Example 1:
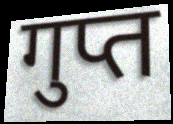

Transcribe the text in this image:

गुप्त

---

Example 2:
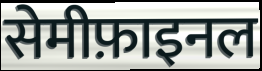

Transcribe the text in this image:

सेमीफ़ाइनल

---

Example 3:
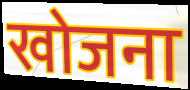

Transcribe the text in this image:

खोजना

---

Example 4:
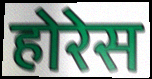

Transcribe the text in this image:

होरेस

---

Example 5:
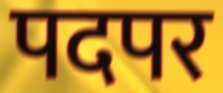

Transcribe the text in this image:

पदपर